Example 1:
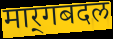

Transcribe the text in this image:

मार्गबदल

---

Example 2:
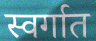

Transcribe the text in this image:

स्वर्गात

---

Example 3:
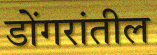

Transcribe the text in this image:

डोंगरांतील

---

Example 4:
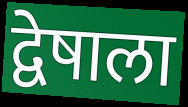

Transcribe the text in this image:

द्वेषाला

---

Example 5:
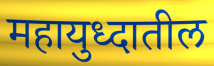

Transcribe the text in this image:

महायुध्दातील